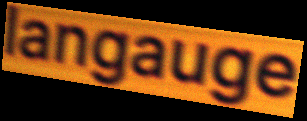
langauge